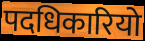
पदधिकारियो